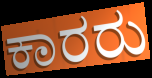
ಕಾರರು